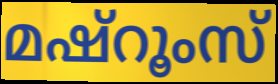
മഷ്റൂംസ്